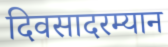
दिवसादरम्यान